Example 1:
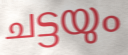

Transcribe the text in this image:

ചട്ടയും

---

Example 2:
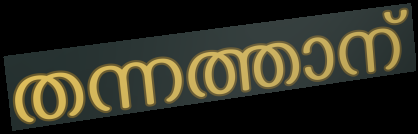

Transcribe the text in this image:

തന്നത്താന്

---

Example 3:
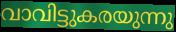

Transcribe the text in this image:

വാവിട്ടുകരയുന്നു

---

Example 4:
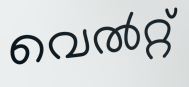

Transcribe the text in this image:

വെൽറ്റ്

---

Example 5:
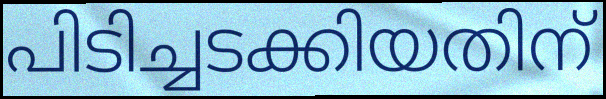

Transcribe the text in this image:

പിടിച്ചടക്കിയതിന്